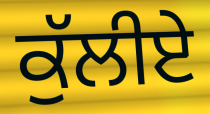
ਕੁੱਲੀਏ